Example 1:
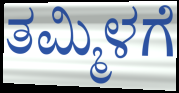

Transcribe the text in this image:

ತಮ್ಮಿಳಗೆ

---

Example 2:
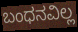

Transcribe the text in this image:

ಬಂಧನವಿಲ್ಲ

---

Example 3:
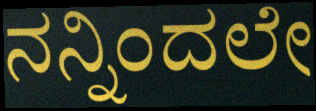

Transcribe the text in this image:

ನನ್ನಿಂದಲೇ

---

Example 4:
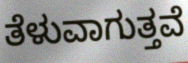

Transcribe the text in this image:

ತೆಳುವಾಗುತ್ತವೆ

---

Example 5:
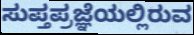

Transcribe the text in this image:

ಸುಪ್ತಪ್ರಜ್ಞೆಯಲ್ಲಿರುವ